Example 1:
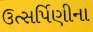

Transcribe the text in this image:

ઉત્સર્પિણીના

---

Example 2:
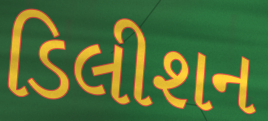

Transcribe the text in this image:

ડિલીશન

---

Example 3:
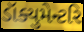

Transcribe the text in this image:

ડૉક્યુમેન્ટરિ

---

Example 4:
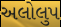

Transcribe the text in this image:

અલોલુપ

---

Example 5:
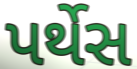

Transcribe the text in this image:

પર્થેસ